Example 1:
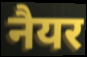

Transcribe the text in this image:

नैयर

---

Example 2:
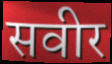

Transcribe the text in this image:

सवीर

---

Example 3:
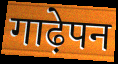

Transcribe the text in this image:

गाढ़ेपन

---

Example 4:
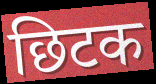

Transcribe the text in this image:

छिटक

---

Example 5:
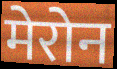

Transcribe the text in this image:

मेरोन